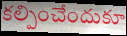
కల్పించేందుకూ